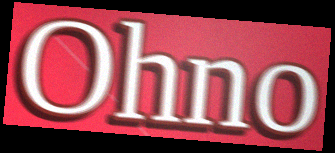
Ohno